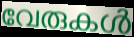
വേരുകൾ